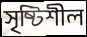
সৃষ্টিশীল